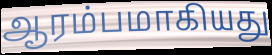
ஆரம்பமாகியது